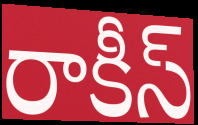
రాకీస్